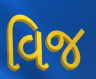
વિજ